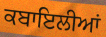
ਕਬਾਇਲੀਆਂ